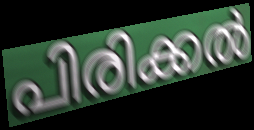
പിരിക്കൽ